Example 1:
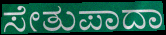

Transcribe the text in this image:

ಸೇತುಪಾದಾ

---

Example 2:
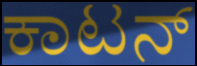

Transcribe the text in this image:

ಕಾಟನ್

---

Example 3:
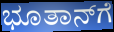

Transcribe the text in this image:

ಭೂತಾನ್‌ಗೆ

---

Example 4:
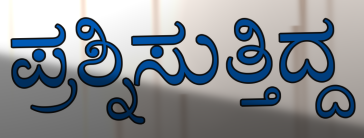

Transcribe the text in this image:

ಪ್ರಶ್ನಿಸುತ್ತಿದ್ದ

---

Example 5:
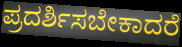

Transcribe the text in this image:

ಪ್ರದರ್ಶಿಸಬೇಕಾದರೆ